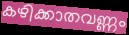
കഴിക്കാതവണ്ണം